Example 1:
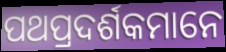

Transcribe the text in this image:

ପଥପ୍ରଦର୍ଶକମାନେ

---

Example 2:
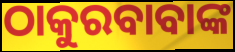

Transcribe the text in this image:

ଠାକୁରବାବାଙ୍କ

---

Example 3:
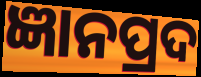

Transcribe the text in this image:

ଜ୍ଞାନପ୍ରଦ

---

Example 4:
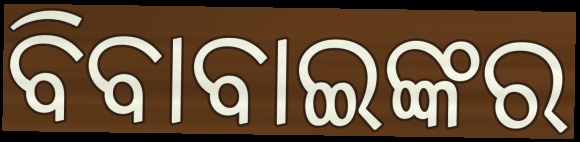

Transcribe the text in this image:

ବିବାବାଇଙ୍କର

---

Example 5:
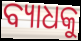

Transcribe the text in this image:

ବ୍ୟାଧକୁ